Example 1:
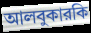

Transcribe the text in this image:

আলবুকারকি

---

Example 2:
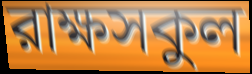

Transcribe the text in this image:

রাক্ষসকুল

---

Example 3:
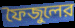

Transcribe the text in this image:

ফৈজুলের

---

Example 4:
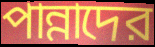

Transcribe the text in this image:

পান্নাদের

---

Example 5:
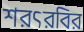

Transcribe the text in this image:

শরৎরবির